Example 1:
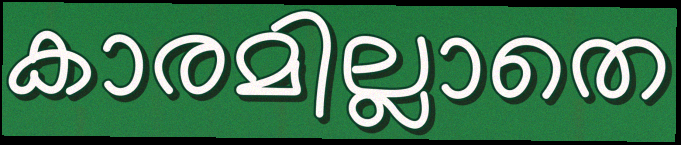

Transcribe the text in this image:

കാരമില്ലാതെ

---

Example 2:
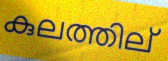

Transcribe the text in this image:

കുലത്തില്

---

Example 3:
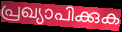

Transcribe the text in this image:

പ്രഖ്യാപിക്കുക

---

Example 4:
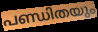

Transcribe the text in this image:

പണ്ഡിതയും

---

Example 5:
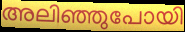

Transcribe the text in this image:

അലിഞ്ഞുപോയി